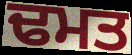
ਢਮਤ